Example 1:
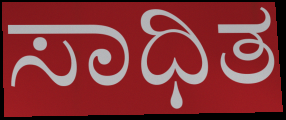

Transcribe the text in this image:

ಸಾಧಿತ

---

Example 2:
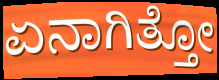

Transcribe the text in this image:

ಏನಾಗಿತ್ತೋ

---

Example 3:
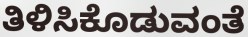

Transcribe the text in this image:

ತಿಳಿಸಿಕೊಡುವಂತೆ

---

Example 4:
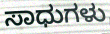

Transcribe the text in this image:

ಸಾಧುಗಳು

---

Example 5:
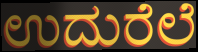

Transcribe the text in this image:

ಉದುರೆಲೆ